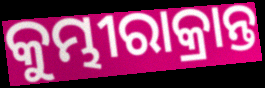
କୁମ୍ଭୀରାକ୍ରାନ୍ତ